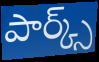
పార్క్స్